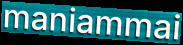
maniammai